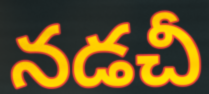
నడచీ